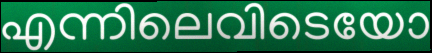
എന്നിലെവിടെയോ